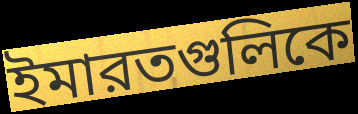
ইমারতগুলিকে